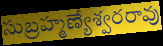
సుబ్రహ్మణ్యేశ్వరరావు